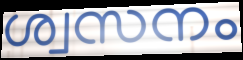
ശ്വസനം